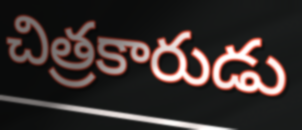
చిత్రకారుడు